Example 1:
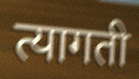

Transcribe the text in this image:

त्यागती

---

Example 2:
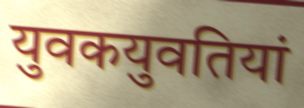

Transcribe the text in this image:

युवकयुवतियां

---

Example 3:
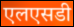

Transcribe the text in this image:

एलएसडी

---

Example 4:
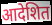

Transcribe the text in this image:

आदेशित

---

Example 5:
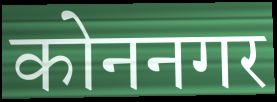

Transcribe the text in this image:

कोननगर